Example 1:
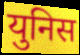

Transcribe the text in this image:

युनिस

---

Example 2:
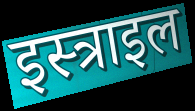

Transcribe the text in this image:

इस्त्राइल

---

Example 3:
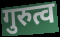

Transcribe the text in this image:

गुरुत्व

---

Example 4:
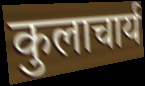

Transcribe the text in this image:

कुलाचार्य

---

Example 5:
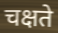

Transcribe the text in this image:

चक्षते